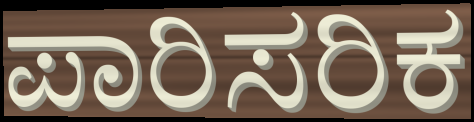
ಪಾರಿಸರಿಕ